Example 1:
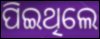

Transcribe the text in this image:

ପିଇଥିଲେ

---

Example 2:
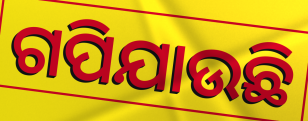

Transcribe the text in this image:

ଗପିଯାଉଛି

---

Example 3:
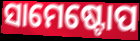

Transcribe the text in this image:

ସାମେଷ୍ଟୋପ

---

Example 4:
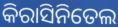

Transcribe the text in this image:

କିରାସିନିତେଲ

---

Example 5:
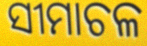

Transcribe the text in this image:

ସୀମାଚଳ